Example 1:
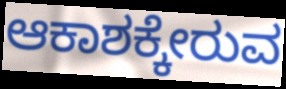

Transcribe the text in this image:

ಆಕಾಶಕ್ಕೇರುವ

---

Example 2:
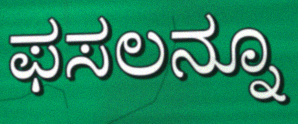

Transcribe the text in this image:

ಫಸಲನ್ನೂ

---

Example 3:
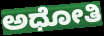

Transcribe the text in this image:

ಅಧೋತಿ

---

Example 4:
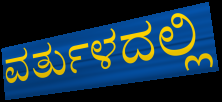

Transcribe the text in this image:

ವರ್ತುಳದಲ್ಲಿ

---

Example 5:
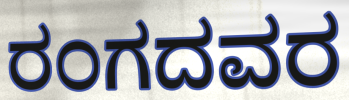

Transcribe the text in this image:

ರಂಗದವರ